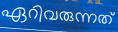
ഏറിവരുന്നത്